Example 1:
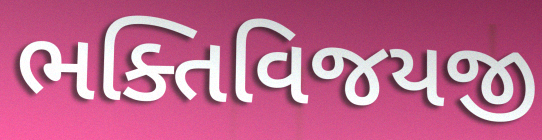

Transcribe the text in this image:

ભક્તિવિજયજી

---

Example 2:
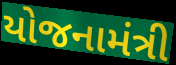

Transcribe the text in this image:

યોજનામંત્રી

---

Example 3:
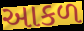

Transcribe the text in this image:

આકળ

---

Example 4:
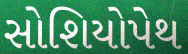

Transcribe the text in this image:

સોશિયોપેથ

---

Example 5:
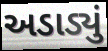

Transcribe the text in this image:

અડાડ્યું